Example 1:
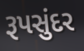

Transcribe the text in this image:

રૂપસુંદર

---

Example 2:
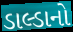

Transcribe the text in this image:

ડાલ્ડાનો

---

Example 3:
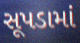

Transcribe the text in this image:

સૂપડામાં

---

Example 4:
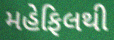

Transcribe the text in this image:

મહેફિલથી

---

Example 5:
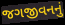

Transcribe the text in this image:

જગજીવનનું